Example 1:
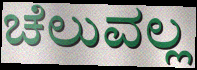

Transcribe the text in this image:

ಚೆಲುವಲ್ಲ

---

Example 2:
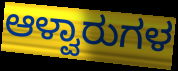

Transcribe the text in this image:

ಆಳ್ವಾರುಗಳ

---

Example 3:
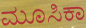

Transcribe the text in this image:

ಮೂಸಿಕಾ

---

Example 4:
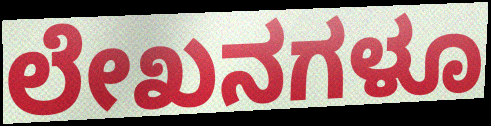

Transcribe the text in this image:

ಲೇಖನಗಳೂ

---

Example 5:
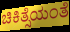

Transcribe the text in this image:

ಚಿಕಿತ್ಸೆಯಂತೆ